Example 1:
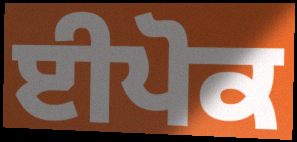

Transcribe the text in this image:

ਈਪੋਕ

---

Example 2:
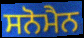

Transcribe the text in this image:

ਸਨੋਮੈਨ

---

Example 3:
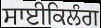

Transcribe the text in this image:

ਸਾਈਕਿਲੰਗ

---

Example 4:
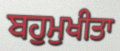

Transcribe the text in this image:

ਬਹੁਮੁਖੀਤਾ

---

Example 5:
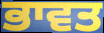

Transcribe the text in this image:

ਭਾਵਤ